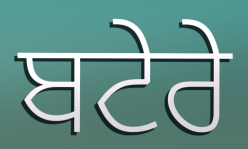
ਬਟੇਰੇ